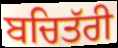
ਬਚਿਤੱਰੀ